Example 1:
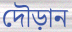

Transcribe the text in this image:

দৌড়ান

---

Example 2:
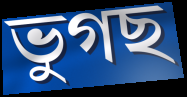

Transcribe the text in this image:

ভুগছ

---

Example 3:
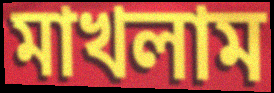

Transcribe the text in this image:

মাখলাম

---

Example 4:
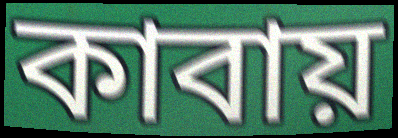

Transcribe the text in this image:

কাবায়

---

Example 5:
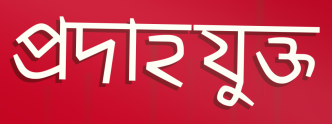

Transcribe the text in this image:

প্রদাহযুক্ত